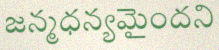
జన్మధన్యమైందని